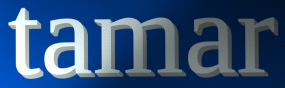
tamar